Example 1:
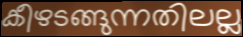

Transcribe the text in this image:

കീഴടങ്ങുന്നതിലല്ല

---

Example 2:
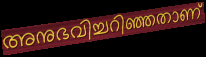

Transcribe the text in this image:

അനുഭവിച്ചറിഞ്ഞതാണ്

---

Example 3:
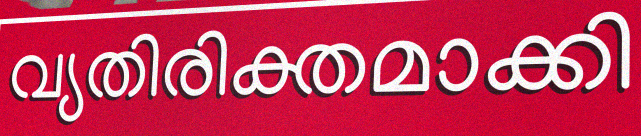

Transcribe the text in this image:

വ്യതിരിക്തമാക്കി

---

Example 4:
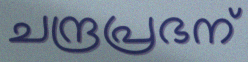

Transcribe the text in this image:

ചന്ദ്രപ്രഭന്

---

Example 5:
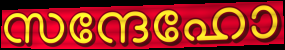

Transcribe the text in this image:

സന്ദേഹോ